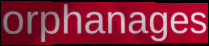
orphanages